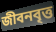
জীবনবৃত্ত